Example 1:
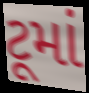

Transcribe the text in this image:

ટૂમાં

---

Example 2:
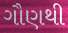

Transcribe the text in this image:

ગૌણથી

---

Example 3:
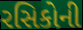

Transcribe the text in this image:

રસિકોની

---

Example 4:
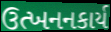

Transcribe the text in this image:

ઉત્ખનનકાર્ય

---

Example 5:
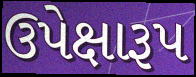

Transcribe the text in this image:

ઉપેક્ષારૂપ